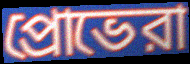
প্রোভেরা